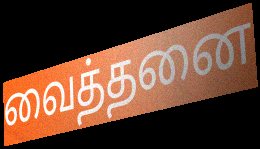
வைத்தனை